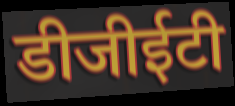
डीजीईटी